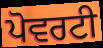
ਪੋਵਰਟੀ